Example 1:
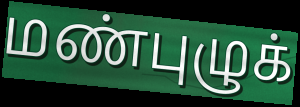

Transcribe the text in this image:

மண்புழுக்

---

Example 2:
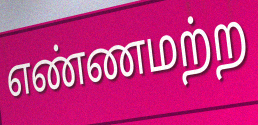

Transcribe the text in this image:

எண்ணமற்ற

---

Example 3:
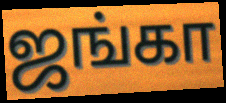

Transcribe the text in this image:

ஜங்கா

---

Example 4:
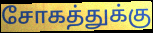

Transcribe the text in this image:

சோகத்துக்கு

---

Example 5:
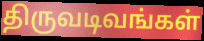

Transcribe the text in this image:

திருவடிவங்கள்